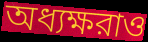
অধ্যক্ষরাও